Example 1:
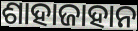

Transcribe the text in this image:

ଶାହାଜାହାନ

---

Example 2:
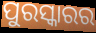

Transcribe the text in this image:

ପୁରସ୍କାରର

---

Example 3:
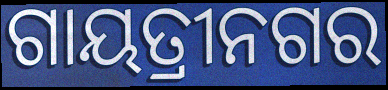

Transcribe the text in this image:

ଗାୟତ୍ରୀନଗର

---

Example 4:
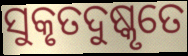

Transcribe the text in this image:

ସୁକୃତଦୁଷ୍କୃତେ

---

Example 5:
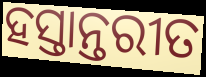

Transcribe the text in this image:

ହସ୍ତାନ୍ତରୀତ